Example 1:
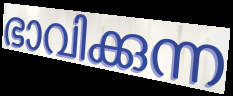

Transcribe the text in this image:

ഭാവിക്കുന്ന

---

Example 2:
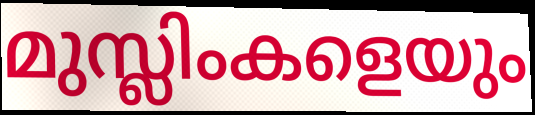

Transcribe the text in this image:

മുസ്ലിംകളെയും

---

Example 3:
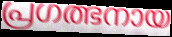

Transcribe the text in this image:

പ്രഗത്ഭനായ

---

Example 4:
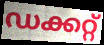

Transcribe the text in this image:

ഡക്കറ്റ്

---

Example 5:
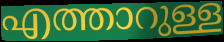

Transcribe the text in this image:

എത്താറുള്ള